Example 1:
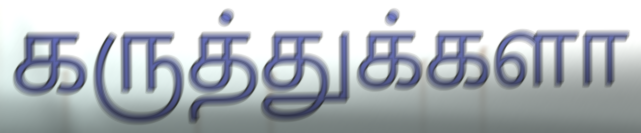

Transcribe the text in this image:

கருத்துக்களா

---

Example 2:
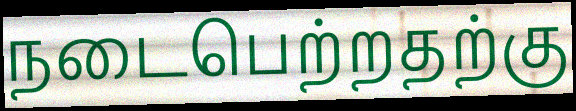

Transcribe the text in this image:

நடைபெற்றதற்கு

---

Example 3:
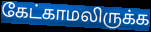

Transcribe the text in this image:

கேட்காமலிருக்க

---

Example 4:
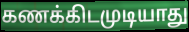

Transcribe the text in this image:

கணக்கிடமுடியாது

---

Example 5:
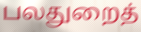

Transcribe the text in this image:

பலதுறைத்